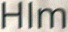
HIm